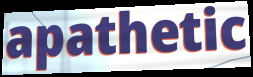
apathetic